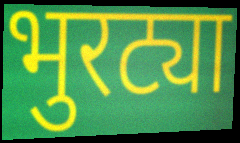
भुरट्या